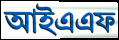
আইএএফ